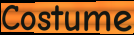
Costume